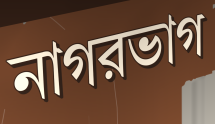
নাগরভাগ